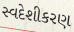
સ્વદેશીકરણ